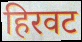
हिरवट